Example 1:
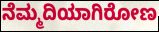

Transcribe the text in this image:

ನೆಮ್ಮದಿಯಾಗಿರೋಣ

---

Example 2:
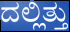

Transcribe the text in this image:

ದಲ್ಲಿತ್ತು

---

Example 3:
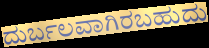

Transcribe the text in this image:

ದುರ್ಬಲವಾಗಿರಬಹುದು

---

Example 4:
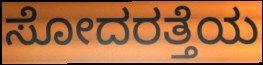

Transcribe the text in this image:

ಸೋದರತ್ತೆಯ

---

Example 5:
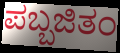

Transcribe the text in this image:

ಪಬ್ಬಜಿತಂ